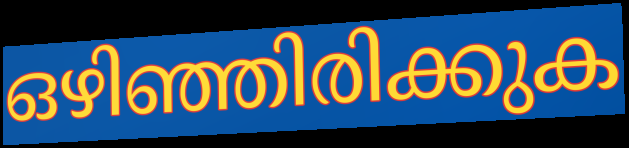
ഒഴിഞ്ഞിരിക്കുക